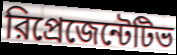
রিপ্রেজেন্টেটিভ